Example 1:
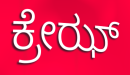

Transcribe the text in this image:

ಕ್ರೇಝ್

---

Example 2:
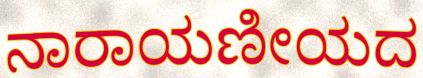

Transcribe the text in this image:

ನಾರಾಯಣೀಯದ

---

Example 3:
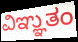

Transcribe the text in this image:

ವಿಞ್ಞುತಂ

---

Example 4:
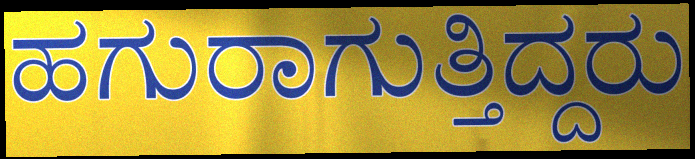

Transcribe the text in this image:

ಹಗುರಾಗುತ್ತಿದ್ದರು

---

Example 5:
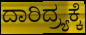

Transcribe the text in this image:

ದಾರಿದ್ರ್ಯಕ್ಕೆ